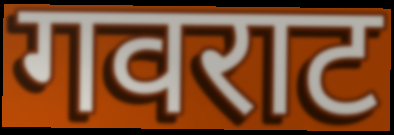
गवराट